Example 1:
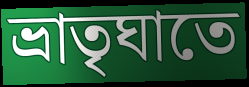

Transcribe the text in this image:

ভ্রাতৃঘাতে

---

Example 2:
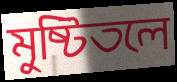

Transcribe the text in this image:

মুষ্টিতলে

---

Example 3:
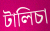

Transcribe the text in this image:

টালিচা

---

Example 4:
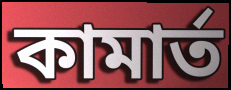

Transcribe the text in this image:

কামার্ত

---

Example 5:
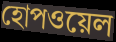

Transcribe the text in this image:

হোপওয়েল